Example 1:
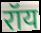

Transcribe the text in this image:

रॉय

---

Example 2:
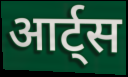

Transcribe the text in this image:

आर्ट्स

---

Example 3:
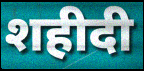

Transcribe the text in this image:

शहीदी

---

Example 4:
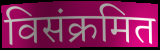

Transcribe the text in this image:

विसंक्रमित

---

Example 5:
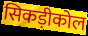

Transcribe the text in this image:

सिकड़ीकोल